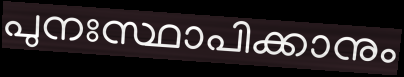
പുനഃസ്ഥാപിക്കാനും